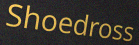
Shoedross